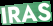
IRAS